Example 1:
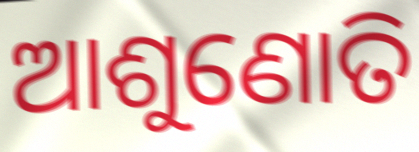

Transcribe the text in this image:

ଆଶୁଣୋତି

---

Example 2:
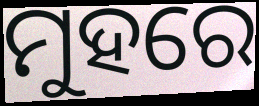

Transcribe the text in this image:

ମୁହରେ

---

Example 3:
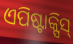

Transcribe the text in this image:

ଏପିଷ୍ଟାକ୍ସିସ୍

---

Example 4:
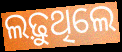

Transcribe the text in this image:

ଲଢ଼ୁଥିଲେ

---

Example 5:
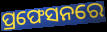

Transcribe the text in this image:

ପ୍ରଫେସନରେ